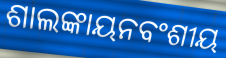
ଶାଲଙ୍କାୟନବଂଶୀୟ